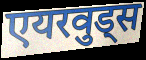
एयरवुड्स